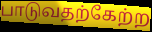
பாடுவதற்கேற்ற